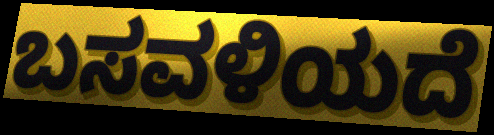
ಬಸವಳಿಯದೆ